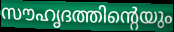
സൗഹൃദത്തിന്റെയും